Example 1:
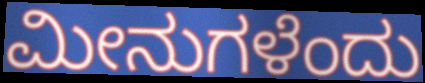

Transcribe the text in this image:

ಮೀನುಗಳೆಂದು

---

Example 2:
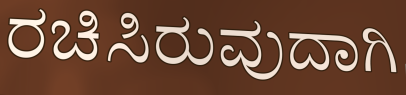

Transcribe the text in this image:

ರಚಿಸಿರುವುದಾಗಿ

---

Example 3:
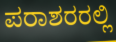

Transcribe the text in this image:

ಪರಾಶರರಲ್ಲಿ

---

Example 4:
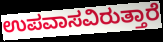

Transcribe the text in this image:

ಉಪವಾಸವಿರುತ್ತಾರೆ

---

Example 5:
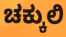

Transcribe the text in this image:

ಚಕ್ಕುಲಿ